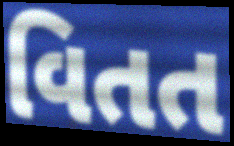
વિતત